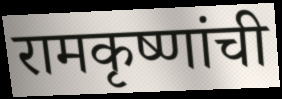
रामकृष्णांची